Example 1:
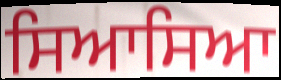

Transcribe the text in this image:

ਸਿਆਸਿਆ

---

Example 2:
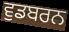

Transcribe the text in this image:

ਵੁਡਬਰਨ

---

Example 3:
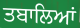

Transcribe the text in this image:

ਤਬਾਲਿਆਂ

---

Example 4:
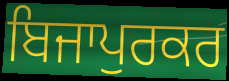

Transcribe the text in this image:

ਬਿਜਾਪੁਰਕਰ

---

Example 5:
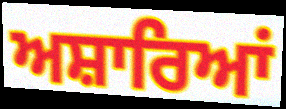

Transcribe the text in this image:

ਅਸ਼ਾਰਿਆਂ